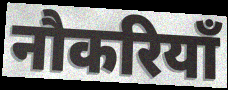
नौकरियाँ